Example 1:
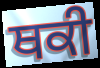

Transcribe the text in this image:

ਥਕੀ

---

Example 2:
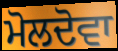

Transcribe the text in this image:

ਮੋਲਦੋਵਾ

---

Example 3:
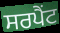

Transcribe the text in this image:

ਸਰਪੈਂਟ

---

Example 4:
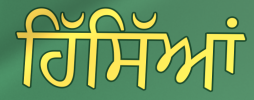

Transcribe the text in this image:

ਹਿੱਸਿੱਆਂ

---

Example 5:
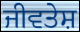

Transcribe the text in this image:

ਜੀਵਤੇਸ਼